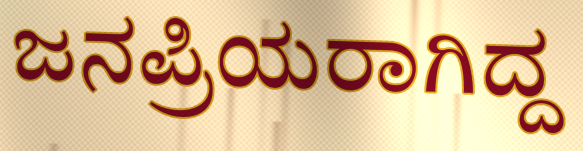
ಜನಪ್ರಿಯರಾಗಿದ್ದ